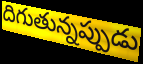
దిగుతున్నప్పుడు